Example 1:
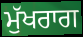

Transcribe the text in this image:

ਮੁੱਖਰਾਗ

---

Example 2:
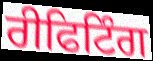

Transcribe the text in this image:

ਰੀਫਿਟਿੰਗ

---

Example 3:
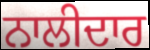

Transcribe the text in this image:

ਨਾਲੀਦਾਰ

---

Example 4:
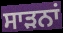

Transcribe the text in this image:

ਸਾੜਨਾਂ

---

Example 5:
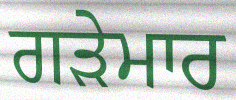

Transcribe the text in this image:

ਗੜੇਮਾਰ